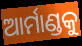
ଆର୍ମାଣ୍ଡକୁ